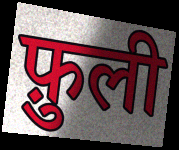
फ़ुली